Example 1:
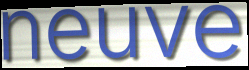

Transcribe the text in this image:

neuve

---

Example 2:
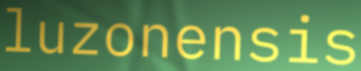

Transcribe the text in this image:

luzonensis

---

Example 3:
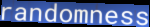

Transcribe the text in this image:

randomness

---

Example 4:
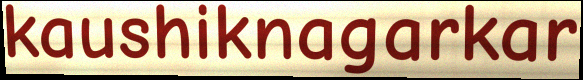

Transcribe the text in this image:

kaushiknagarkar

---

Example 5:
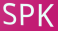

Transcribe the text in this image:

SPK